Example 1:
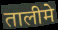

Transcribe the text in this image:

तालीमे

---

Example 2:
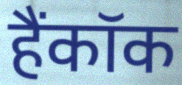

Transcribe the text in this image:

हैंकॉक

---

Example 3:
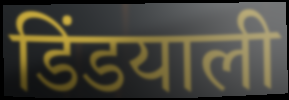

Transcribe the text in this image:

डिंडयाली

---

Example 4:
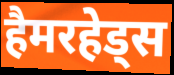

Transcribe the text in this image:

हैमरहेड्स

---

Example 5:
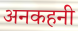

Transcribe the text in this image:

अनकहनी